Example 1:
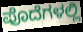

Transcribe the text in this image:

ಪೊದೆಗಳಲ್ಲಿ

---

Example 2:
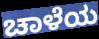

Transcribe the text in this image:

ಚಾಳೆಯ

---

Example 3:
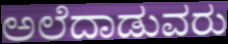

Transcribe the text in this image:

ಅಲೆದಾಡುವರು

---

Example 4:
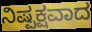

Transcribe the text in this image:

ನಿಷ್ಪಕ್ಷವಾದ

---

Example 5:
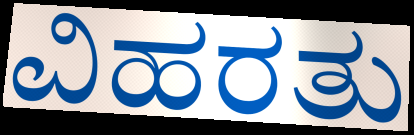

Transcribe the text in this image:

ವಿಹರತು